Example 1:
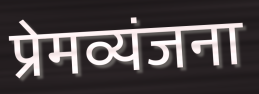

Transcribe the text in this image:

प्रेमव्यंजना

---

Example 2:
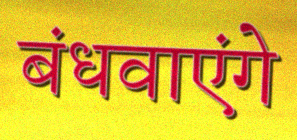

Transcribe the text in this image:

बंधवाएंगे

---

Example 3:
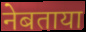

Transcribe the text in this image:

नेबताया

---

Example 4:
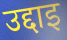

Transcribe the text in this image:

उद्दाइ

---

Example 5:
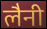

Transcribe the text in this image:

लैनी